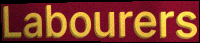
Labourers